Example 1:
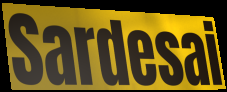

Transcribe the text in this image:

Sardesai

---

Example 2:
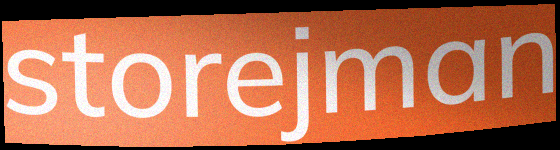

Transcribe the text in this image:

storejman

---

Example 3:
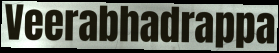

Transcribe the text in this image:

Veerabhadrappa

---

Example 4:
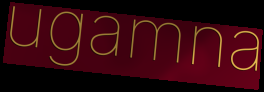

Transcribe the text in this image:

ugamna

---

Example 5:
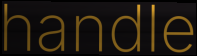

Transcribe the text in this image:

handle